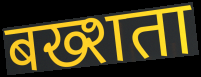
बख्शता